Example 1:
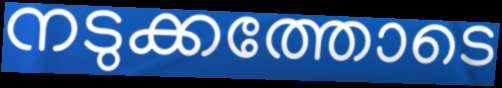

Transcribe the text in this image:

നടുക്കത്തോടെ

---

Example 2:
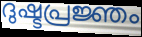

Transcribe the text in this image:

ദുഷ്ടപ്രജ്ഞം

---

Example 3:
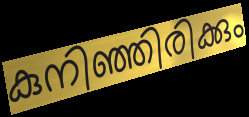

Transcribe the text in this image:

കുനിഞ്ഞിരിക്കും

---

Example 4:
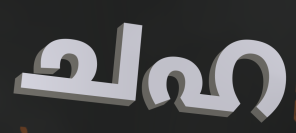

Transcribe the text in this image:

ചഹ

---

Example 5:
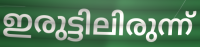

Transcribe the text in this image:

ഇരുട്ടിലിരുന്ന്